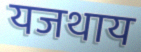
यजथाय